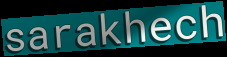
sarakhech